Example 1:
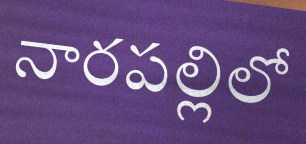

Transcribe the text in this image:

నారపల్లిలో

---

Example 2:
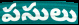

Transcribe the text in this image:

పసులు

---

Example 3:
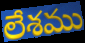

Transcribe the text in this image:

లేశము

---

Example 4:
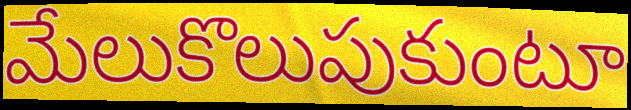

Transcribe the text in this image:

మేలుకొలుపుకుంటూ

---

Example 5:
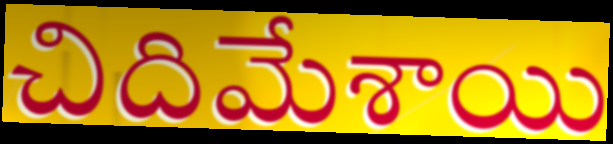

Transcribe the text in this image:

చిదిమేశాయి